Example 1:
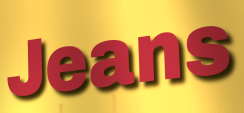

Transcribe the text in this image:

Jeans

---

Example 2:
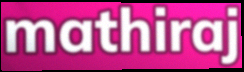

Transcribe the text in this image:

mathiraj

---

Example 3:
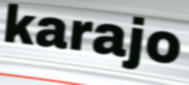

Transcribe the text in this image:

karajo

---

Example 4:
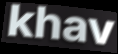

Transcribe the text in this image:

khav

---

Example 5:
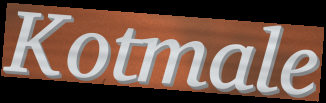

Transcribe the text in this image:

Kotmale